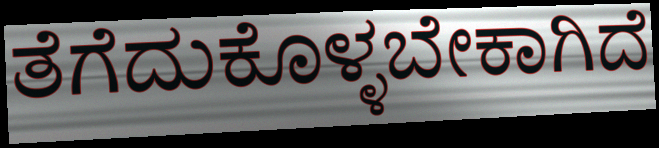
ತೆಗೆದುಕೊಳ್ಳಬೇಕಾಗಿದೆ